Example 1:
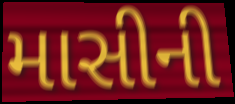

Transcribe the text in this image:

માસીની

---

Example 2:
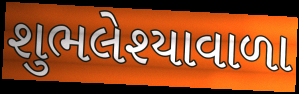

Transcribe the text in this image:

શુભલેશ્યાવાળા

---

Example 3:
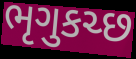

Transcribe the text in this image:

ભૃગુકચ્છ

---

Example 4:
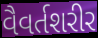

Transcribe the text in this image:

વૈવર્તશરીર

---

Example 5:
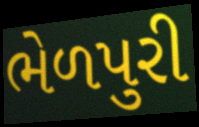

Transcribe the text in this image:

ભેળપુરી